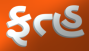
ફત્હ